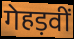
गेहड़वीं